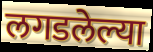
लगडलेल्या